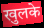
खुलके